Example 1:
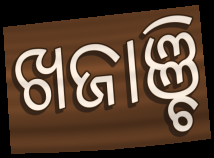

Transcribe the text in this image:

ଖଜାଞ୍ଚି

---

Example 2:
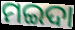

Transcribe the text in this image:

ମଇଦା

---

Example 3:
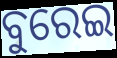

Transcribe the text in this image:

ବୁରେଇ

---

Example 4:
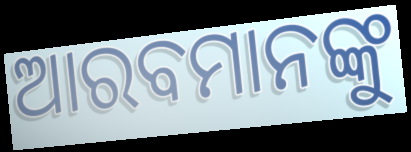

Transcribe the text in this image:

ଆରବମାନଙ୍କୁ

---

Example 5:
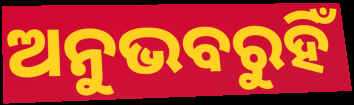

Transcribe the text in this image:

ଅନୁଭବରୁହିଁ